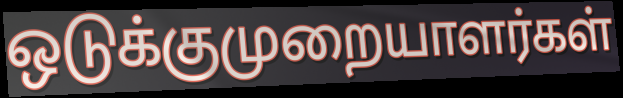
ஒடுக்குமுறையாளர்கள்